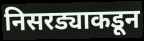
निसरड्याकडून